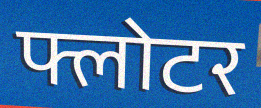
फ्लोटर